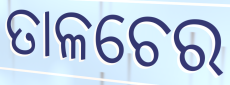
ତାଳଚେର